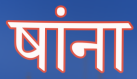
षांना